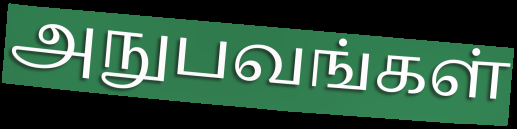
அநுபவங்கள்